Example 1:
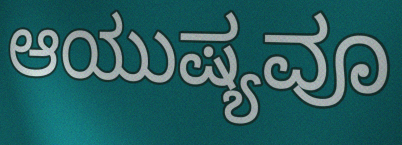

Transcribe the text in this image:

ಆಯುಷ್ಯವೂ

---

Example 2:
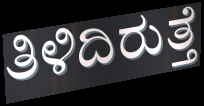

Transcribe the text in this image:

ತಿಳಿದಿರುತ್ತೆ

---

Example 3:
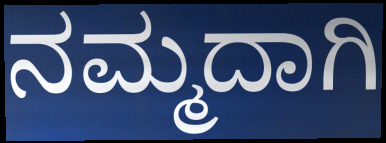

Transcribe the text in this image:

ನಮ್ಮದಾಗಿ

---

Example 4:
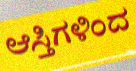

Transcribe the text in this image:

ಆಸ್ತಿಗಳಿಂದ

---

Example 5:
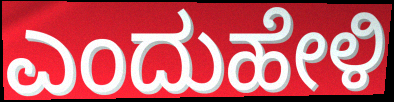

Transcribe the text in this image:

ಎಂದುಹೇಳಿ